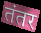
तंतर